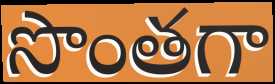
సొంతగా